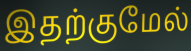
இதற்குமேல்